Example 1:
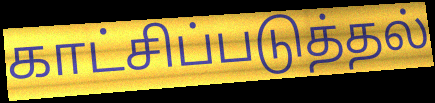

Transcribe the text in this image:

காட்சிப்படுத்தல்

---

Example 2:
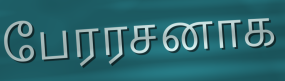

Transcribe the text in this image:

பேரரசனாக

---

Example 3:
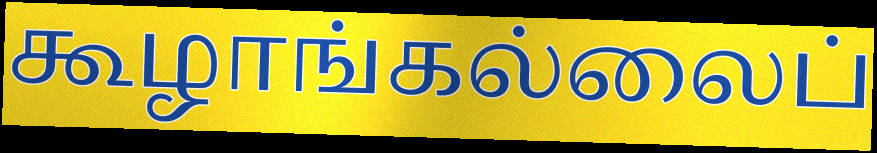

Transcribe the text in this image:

கூழாங்கல்லைப்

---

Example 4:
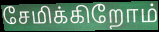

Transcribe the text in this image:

சேமிக்கிறோம்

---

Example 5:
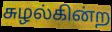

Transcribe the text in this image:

சுழல்கின்ற